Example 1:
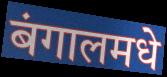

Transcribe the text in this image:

बंगालमधे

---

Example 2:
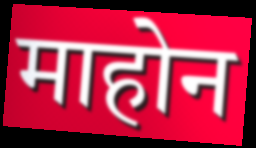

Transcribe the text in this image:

माहोन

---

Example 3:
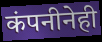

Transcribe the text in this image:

कंपनीनेही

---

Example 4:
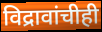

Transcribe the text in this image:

विद्रावांचीही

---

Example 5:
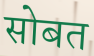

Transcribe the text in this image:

सोबत